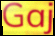
Gaj